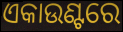
ଏକାଉଣ୍ଟରେ